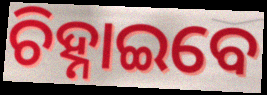
ଚିହ୍ନାଇବେ